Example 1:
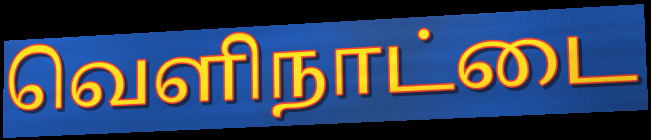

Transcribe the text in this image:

வெளிநாட்டை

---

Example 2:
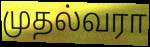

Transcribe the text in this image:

முதல்வரா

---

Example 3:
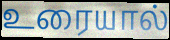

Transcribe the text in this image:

உரையால்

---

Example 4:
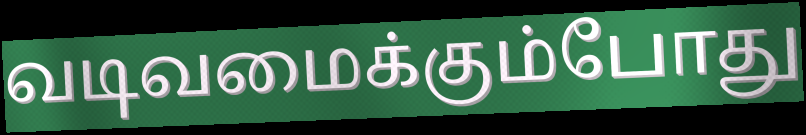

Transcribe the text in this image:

வடிவமைக்கும்போது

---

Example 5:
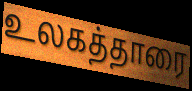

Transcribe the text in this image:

உலகத்தாரை